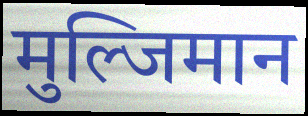
मुल्जिमान